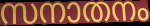
സനാതനം